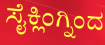
ಸೈಕ್ಲಿಂಗ್ನಿಂದ